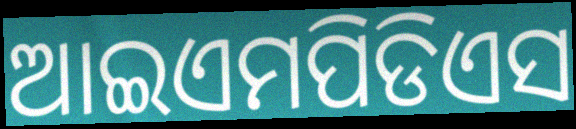
ଆଇଏମପିଡିଏସ